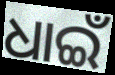
ଧାଇଁ